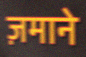
ज़माने